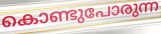
കൊണ്ടുപോരുന്ന